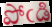
పోఁడి